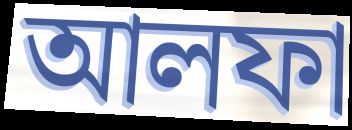
আলফা